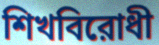
শিখবিরোধী